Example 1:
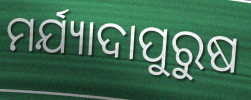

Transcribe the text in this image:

ମର୍ଯ୍ୟାଦାପୁରୁଷ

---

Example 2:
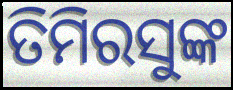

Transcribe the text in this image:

ତିମିରସୁଙ୍କ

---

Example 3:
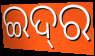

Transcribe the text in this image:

ଇଦ୍‍ର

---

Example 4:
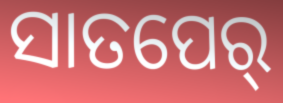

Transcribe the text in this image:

ସାତପେର୍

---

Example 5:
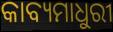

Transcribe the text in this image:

କାବ୍ୟମାଧୁରୀ